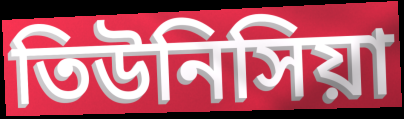
তিউনিসিয়া